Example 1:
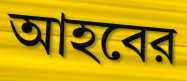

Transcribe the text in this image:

আহবের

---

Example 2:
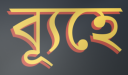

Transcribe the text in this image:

ব্যূহে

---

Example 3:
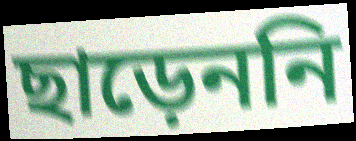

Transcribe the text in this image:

ছাড়েননি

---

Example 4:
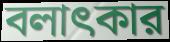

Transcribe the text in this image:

বলাৎকার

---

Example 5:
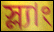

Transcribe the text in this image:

স্ল্যাং